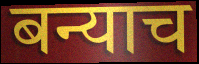
बन्याच